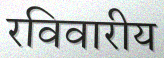
रविवारीय